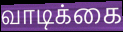
வாடிக்கை